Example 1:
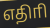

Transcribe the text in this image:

எதிரி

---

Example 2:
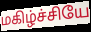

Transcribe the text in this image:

மகிழ்ச்சியே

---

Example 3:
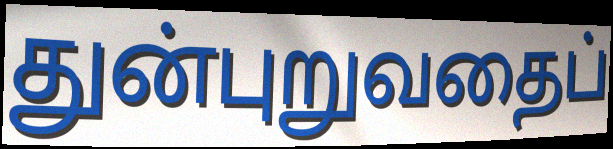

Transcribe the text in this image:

துன்புறுவதைப்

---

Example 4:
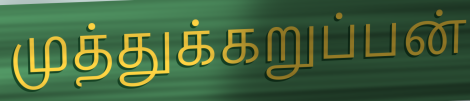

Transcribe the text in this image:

முத்துக்கறுப்பன்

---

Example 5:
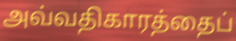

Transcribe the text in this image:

அவ்வதிகாரத்தைப்